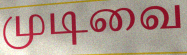
முடிவை